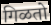
गिळतो